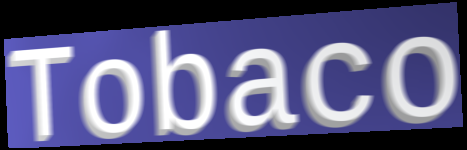
Tobaco